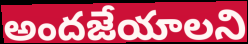
అందజేయాలని